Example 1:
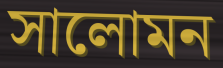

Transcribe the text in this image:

সালোমন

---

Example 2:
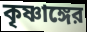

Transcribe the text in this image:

কৃষ্ণাঙ্গের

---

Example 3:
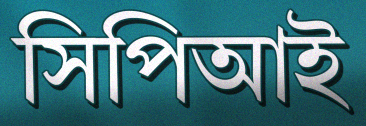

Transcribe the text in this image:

সিপিআই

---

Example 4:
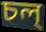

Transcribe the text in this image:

চল্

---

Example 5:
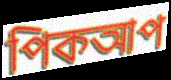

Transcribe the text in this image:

পিকআপ